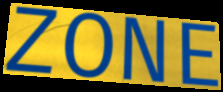
ZONE